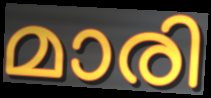
മാരി